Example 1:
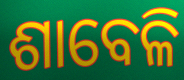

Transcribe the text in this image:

ଶାବେଳି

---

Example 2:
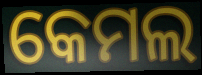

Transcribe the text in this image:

କେମଲ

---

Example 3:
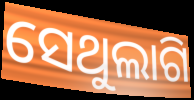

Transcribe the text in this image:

ସେଥୁଲାଗି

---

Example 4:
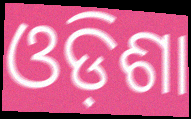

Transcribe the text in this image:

ଓଡ଼ିଶା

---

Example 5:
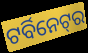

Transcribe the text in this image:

ଟର୍ବିନେଟ୍‌ର